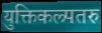
युक्तिकल्पतरु